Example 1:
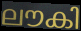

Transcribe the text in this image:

ലൗകി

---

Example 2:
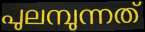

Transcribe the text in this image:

പുലമ്പുന്നത്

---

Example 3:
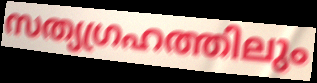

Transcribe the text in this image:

സത്യഗ്രഹത്തിലും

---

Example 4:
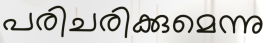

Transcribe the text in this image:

പരിചരിക്കുമെന്നു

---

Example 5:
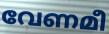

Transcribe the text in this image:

വേണമീ